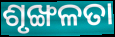
ଶୃଙ୍ଖଳତା